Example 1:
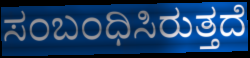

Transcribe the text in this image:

ಸಂಬಂಧಿಸಿರುತ್ತದೆ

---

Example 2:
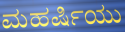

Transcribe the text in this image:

ಮಹರ್ಷಿಯು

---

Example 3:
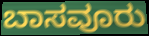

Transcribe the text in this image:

ಬಾಸವೂರು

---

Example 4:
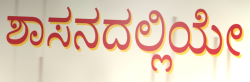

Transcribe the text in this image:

ಶಾಸನದಲ್ಲಿಯೇ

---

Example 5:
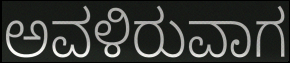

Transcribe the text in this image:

ಅವಳಿರುವಾಗ